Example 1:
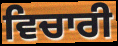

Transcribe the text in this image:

ਵਿਚਾਰੀ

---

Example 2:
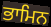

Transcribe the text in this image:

ਭਾਮਿਨ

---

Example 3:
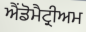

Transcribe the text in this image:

ਐਂਡੋਮੈਟ੍ਰੀਅਮ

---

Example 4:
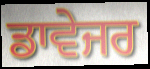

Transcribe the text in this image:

ਡਾਵੇਜਰ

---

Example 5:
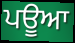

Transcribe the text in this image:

ਪਊਆ